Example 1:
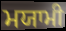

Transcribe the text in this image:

ਮਯਾਮੀ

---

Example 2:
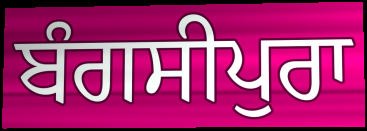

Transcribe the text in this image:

ਬੰਗਸੀਪੁਰਾ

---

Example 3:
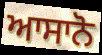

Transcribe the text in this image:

ਆਸਾਨੋ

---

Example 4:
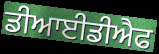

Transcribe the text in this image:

ਡੀਆਈਡੀਐਫ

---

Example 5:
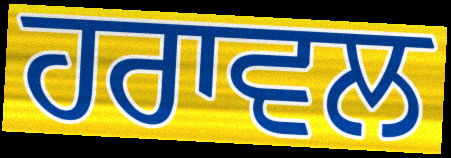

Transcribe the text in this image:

ਹਰਾਵਲ